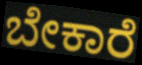
ಬೇಕಾರೆ